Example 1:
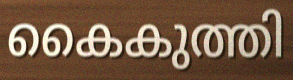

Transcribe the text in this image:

കൈകുത്തി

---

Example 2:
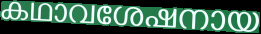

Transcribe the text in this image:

കഥാവശേഷനായ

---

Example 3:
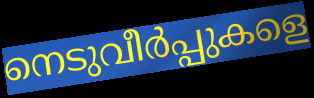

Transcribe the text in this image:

നെടുവീർപ്പുകളെ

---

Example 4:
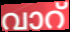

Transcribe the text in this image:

വാറ്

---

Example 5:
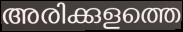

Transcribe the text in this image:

അരിക്കുളത്തെ